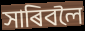
সাৰিবলৈ